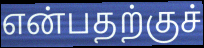
என்பதற்குச்